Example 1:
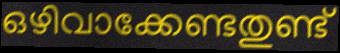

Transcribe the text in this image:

ഒഴിവാക്കേണ്ടതുണ്ട്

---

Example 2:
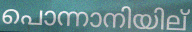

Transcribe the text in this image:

പൊന്നാനിയില്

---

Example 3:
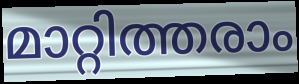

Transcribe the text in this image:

മാറ്റിത്തരാം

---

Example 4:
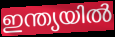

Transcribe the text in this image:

ഇന്ത്യയിൽ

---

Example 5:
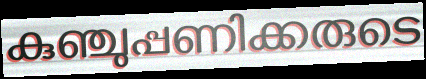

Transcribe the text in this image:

കുഞ്ചുപ്പണിക്കരുടെ